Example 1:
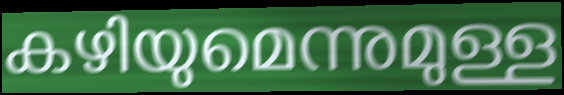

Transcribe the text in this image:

കഴിയുമെന്നുമുള്ള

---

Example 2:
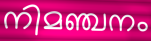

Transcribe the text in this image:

നിമഞ്ചനം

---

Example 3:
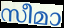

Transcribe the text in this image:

സീമാ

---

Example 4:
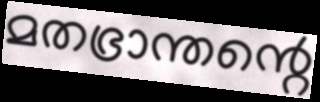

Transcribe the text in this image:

മതഭ്രാന്തന്റെ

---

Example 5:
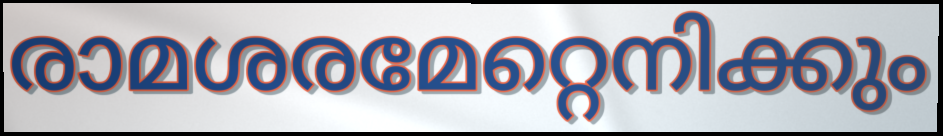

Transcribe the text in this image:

രാമശരമേറ്റെനിക്കും